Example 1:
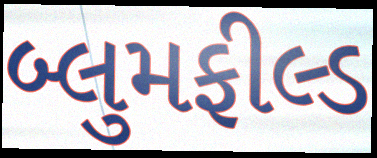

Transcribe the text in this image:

બ્લુમફીલ્ડ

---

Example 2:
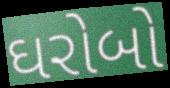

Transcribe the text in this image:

ઘરોબો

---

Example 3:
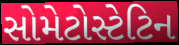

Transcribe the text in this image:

સોમેટોસ્ટેટિન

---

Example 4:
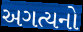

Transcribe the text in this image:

અગત્યનો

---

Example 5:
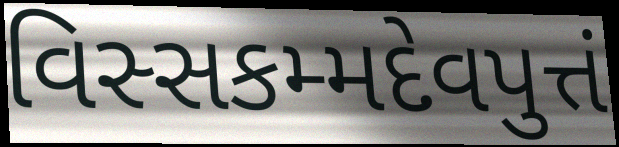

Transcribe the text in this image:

વિસ્સકમ્મદેવપુત્તં